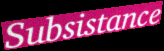
Subsistance